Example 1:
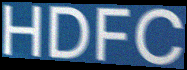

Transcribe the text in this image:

HDFC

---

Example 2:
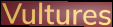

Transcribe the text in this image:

Vultures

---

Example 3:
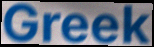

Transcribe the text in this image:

Greek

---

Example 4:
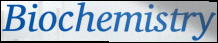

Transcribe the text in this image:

Biochemistry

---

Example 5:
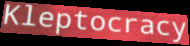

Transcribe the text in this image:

Kleptocracy